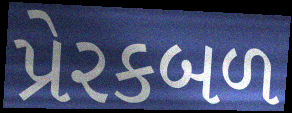
પ્રેરકબળ